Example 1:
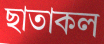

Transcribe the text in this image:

ছাতাকল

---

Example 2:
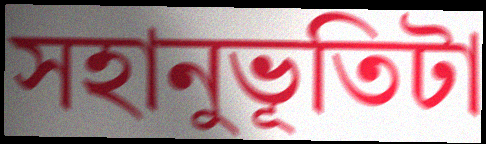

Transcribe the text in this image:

সহানুভূতিটা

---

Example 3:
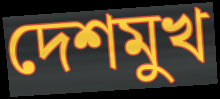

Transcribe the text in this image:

দেশমুখ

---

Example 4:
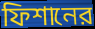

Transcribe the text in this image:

ফিশানের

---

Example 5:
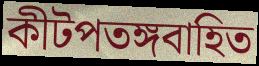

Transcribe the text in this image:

কীটপতঙ্গবাহিত